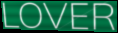
LOVER